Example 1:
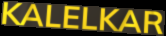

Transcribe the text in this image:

KALELKAR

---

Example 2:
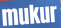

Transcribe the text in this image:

mukur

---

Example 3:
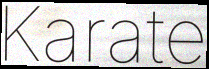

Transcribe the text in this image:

Karate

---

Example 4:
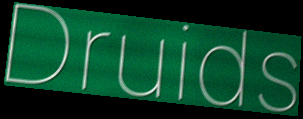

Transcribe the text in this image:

Druids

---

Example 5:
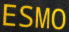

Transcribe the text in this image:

ESMO